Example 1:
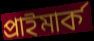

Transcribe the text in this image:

প্রাইমার্ক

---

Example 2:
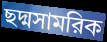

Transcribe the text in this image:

ছদ্মসামরিক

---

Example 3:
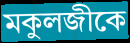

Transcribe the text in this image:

মকুলজীকে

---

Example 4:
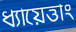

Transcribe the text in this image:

ধ্যায়েত্তাং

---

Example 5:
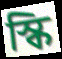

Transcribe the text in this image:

স্কি